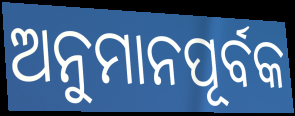
ଅନୁମାନପୂର୍ବକ